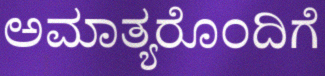
ಅಮಾತ್ಯರೊಂದಿಗೆ